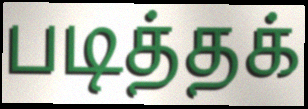
படித்தக்